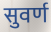
सुवर्ण